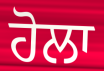
ਹੋਲਾ